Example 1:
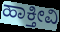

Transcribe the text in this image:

ಹಾಕ್ತೀವಿ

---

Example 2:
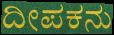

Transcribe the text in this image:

ದೀಪಕನು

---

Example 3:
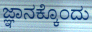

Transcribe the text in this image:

ಜ್ಞಾನಕ್ಕೊಂದು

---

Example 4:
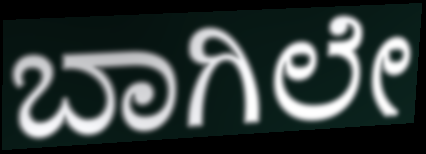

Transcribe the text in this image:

ಬಾಗಿಲೇ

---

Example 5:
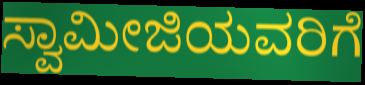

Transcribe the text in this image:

ಸ್ವಾಮೀಜಿಯವರಿಗೆ